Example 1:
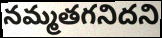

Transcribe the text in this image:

నమ్మతగనిదని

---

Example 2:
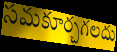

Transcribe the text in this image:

సమకూర్చగలదు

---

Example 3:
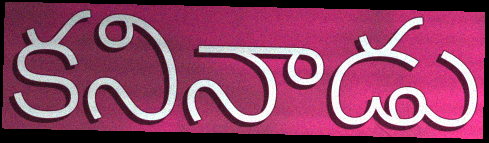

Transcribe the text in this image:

కనినాడు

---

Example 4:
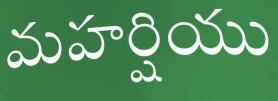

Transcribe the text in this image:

మహర్షియు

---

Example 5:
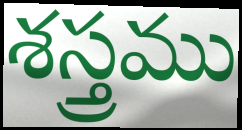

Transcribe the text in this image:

శస్త్రము